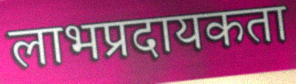
लाभप्रदायकता